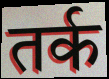
तर्क